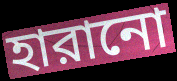
হারানো